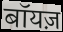
बॉयज़